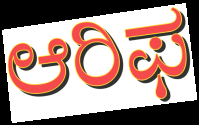
ಆರಿಫ